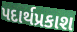
પદાર્થપ્રકાશ